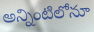
అన్నింటిలోనూ